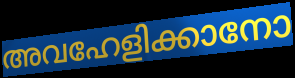
അവഹേളിക്കാനോ